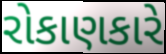
રોકાણકારે